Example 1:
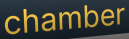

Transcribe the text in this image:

chamber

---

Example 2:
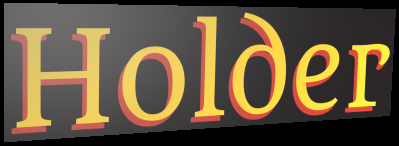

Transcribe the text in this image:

Holder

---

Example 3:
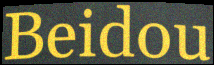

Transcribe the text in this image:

Beidou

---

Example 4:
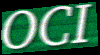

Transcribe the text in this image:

OCI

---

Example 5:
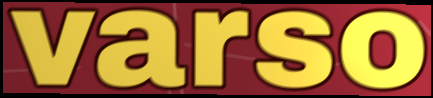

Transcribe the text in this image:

varso